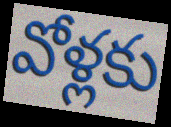
వోళ్లకు